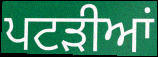
ਪਟਡ਼ੀਆਂ